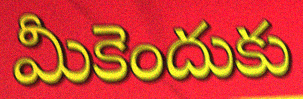
మీకెందుకు